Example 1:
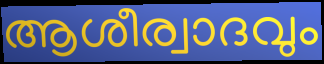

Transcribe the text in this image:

ആശീര്വാദവും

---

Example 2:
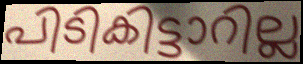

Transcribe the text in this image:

പിടികിട്ടാറില്ല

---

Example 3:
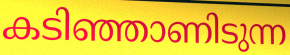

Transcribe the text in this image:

കടിഞ്ഞാണിടുന്ന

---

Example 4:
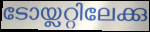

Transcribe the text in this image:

ടോയ്ലറ്റിലേക്കു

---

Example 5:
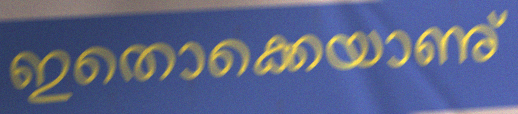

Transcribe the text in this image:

ഇതൊക്കെയാണു്